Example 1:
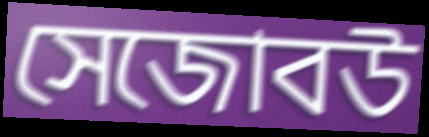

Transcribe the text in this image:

সেজোবউ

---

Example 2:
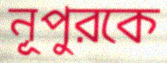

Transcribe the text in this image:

নূপুরকে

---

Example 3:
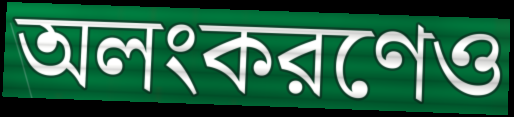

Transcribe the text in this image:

অলংকরণেও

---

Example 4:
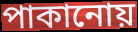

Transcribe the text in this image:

পাকানোয়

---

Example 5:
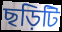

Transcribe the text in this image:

ছড়িটি